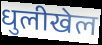
धुलीखेल